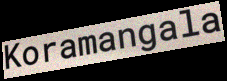
Koramangala